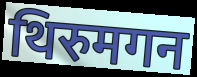
थिरुमगन